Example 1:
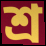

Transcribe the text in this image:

শ্র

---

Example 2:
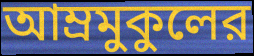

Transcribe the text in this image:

আম্রমুকুলের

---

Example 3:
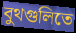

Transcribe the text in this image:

বুথগুলিতে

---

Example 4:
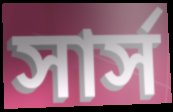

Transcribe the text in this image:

সার্স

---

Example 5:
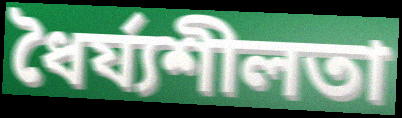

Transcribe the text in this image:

ধৈর্য্যশীলতা